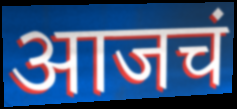
आजचं